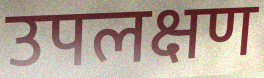
उपलक्षण